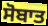
ਸੋਬਾਤ